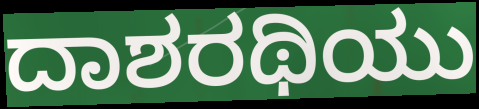
ದಾಶರಥಿಯು